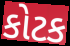
કોટક